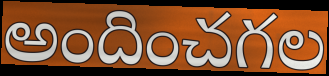
అందించగల